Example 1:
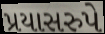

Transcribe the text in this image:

પ્રયાસરુપે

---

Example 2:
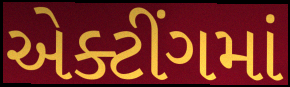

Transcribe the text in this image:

એક્ટીંગમાં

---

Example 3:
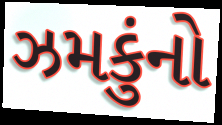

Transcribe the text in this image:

ઝમકુંનો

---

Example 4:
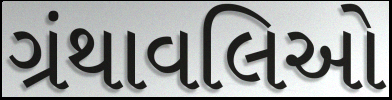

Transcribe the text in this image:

ગ્રંથાવલિઓ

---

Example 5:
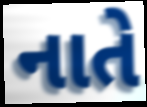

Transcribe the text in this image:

નાતે